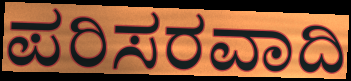
ಪರಿಸರವಾದಿ